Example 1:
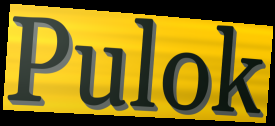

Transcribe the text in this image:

Pulok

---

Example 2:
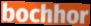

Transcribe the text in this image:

bochhor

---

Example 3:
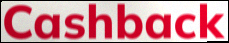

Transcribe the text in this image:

Cashback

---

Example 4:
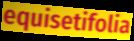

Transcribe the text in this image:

equisetifolia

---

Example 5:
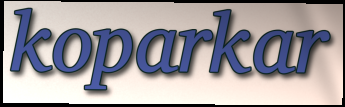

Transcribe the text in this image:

koparkar